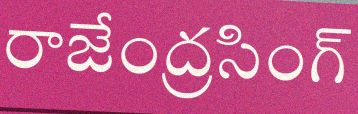
రాజేంద్రసింగ్